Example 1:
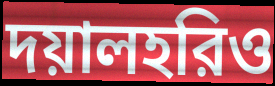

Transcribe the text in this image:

দয়ালহরিও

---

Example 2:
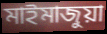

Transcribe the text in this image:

মাইমাজুয়া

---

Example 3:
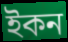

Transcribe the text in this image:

ইকন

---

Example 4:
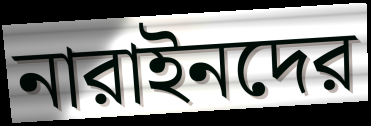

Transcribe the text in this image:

নারাইনদের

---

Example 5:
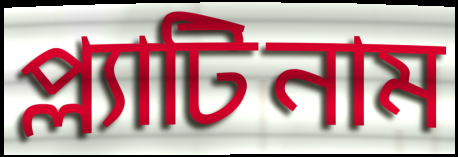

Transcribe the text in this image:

প্ল্যাটিনাম